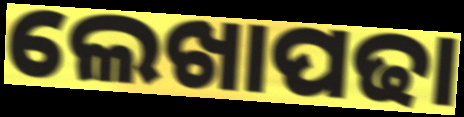
ଲେଖାପଢା